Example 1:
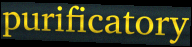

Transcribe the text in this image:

purificatory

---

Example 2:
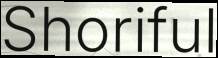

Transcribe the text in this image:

Shoriful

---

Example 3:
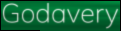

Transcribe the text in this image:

Godavery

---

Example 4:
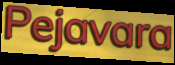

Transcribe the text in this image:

Pejavara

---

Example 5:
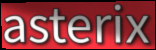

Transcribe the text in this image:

asterix